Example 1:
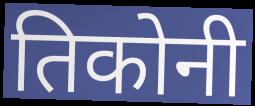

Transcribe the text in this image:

तिकोनी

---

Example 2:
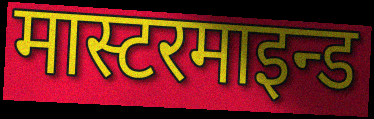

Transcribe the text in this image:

मास्टरमाइन्ड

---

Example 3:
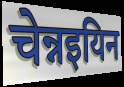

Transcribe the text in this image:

चेन्नइयिन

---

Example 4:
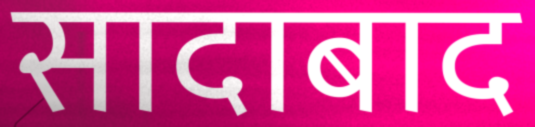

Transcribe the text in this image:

सादाबाद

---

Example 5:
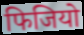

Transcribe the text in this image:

फिजियो